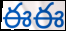
ఈఈ